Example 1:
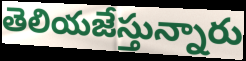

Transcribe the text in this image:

తెలియజేస్తున్నారు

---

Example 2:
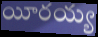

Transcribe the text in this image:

యీరయ్య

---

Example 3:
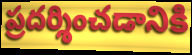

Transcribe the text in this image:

ప్రదర్శించడానికి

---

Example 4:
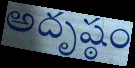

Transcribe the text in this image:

అదృష్ఠం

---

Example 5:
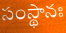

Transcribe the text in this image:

సంస్థానః